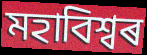
মহাবিশ্বৰ